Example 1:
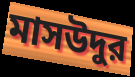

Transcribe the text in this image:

মাসউদুর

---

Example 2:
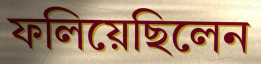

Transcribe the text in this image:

ফলিয়েছিলেন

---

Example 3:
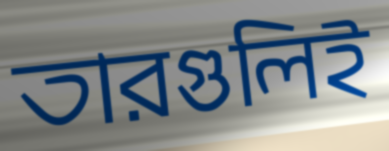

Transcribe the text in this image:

তারগুলিই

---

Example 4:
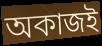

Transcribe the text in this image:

অকাজই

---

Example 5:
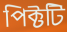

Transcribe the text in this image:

পিক্টটি